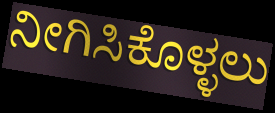
ನೀಗಿಸಿಕೊಳ್ಳಲು